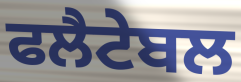
ਫਲੈਟੇਬਲ